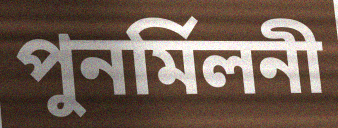
পুনর্মিলনী